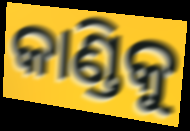
କାଣ୍ଡିକୁ